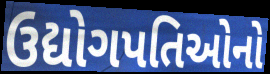
ઉદ્યોગપતિઓનો